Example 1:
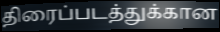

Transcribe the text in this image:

திரைப்படத்துக்கான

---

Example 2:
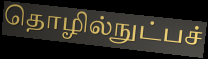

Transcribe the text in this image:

தொழில்நுட்பச்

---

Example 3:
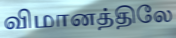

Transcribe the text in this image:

விமானத்திலே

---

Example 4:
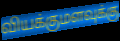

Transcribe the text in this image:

வியக்குமளவுக்கு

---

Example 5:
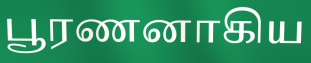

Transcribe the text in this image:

பூரணனாகிய